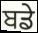
ਬਡੇ